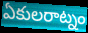
ఏకులరాట్నం